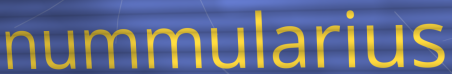
nummularius